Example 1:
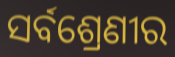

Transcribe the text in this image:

ସର୍ବଶ୍ରେଣୀର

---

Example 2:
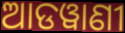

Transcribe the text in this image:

ଆଡୱାଣୀ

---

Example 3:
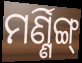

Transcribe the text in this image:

ମର୍ଣ୍ଣିଙ୍ଗ୍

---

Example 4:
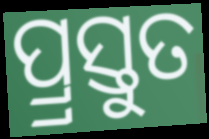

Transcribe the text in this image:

ପ୍ର୍ରସ୍ତୁତ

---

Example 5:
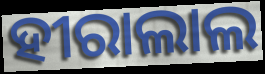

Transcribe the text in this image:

ହୀରାଲାଲ